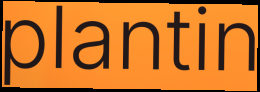
plantin